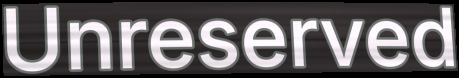
Unreserved